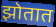
झोतात